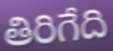
తిరిగేది